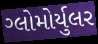
ગ્લોમોર્યુલર